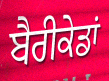
ਬੈਰੀਕੇਡਾਂ